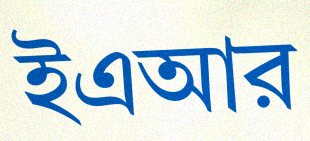
ইএআর